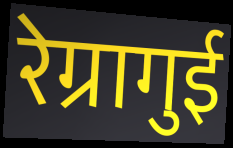
रेग्रागुई